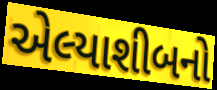
એલ્યાશીબનો